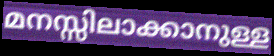
മനസ്സിലാക്കാനുള്ള